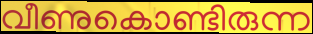
വീണുകൊണ്ടിരുന്ന